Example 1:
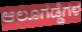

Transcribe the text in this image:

ಆಲೂಗಡ್ಡೆಗಳ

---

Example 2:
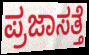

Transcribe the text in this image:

ಪ್ರಜಾಸತ್ತೆ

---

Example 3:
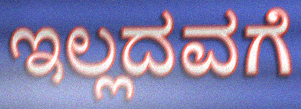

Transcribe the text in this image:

ಇಲ್ಲದವಗೆ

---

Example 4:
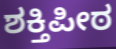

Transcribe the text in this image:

ಶಕ್ತಿಪೀಠ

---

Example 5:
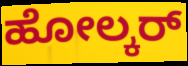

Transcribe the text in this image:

ಹೋಲ್ಕರ್